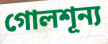
গোলশূন্য